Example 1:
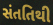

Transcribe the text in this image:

સંતતિથી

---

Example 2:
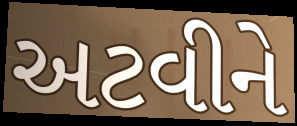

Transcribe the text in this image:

અટવીને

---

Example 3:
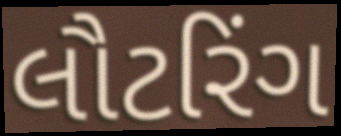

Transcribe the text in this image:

લૌટરિંગ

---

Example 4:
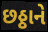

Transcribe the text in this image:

છઠ્ઠાને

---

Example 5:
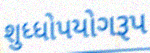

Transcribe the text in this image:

શુધ્ધોપયોગરૂપ